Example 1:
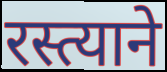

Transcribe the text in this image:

रस्त्याने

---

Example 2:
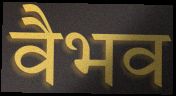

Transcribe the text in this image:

वैभव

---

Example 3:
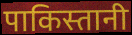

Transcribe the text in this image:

पाकिस्तानी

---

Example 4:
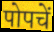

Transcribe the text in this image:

पोपचें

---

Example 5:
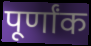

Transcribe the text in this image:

पूर्णांक